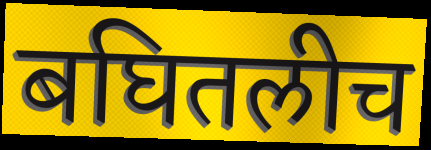
बघितलीच